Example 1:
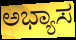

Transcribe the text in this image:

ಅಭ್ಯಾಸ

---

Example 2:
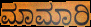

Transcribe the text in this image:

ಮಾಮಾರಿ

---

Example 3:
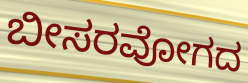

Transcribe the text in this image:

ಬೀಸರವೋಗದ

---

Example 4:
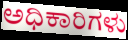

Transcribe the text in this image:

ಅಧಿಕಾರಿಗಳು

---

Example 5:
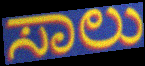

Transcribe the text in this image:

ಸಾಲು